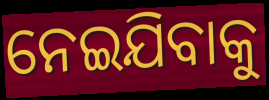
ନେଇଯିବାକୁ